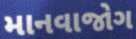
માનવાજોગ